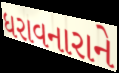
ધરાવનારાને